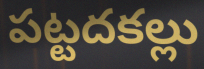
పట్టదకల్లు